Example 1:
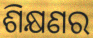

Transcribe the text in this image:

ଶିକ୍ଷଣର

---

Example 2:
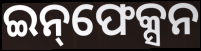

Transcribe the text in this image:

ଇନ୍‌ଫେକ୍ସନ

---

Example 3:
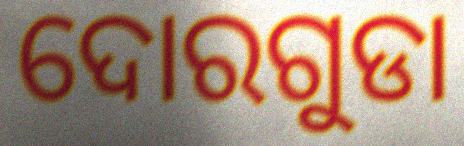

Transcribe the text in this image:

ଦୋରଗୁଡା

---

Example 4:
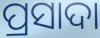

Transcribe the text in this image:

ପ୍ରସାଦା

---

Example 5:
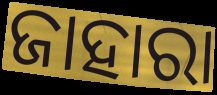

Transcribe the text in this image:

ଜାହାରା